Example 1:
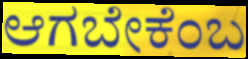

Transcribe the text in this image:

ಆಗಬೇಕೆಂಬ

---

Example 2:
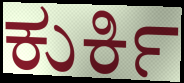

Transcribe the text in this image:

ಕುರ್ಕಿ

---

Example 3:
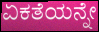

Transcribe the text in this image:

ಏಕತೆಯನ್ನೇ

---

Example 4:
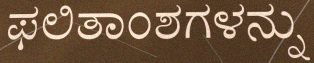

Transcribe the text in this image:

ಫಲಿತಾಂಶಗಳನ್ನು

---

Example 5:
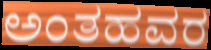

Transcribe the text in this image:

ಅಂತಹವರ